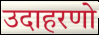
उदाहरणो